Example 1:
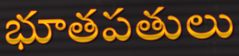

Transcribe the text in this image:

భూతపతులు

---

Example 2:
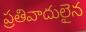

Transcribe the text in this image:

ప్రతివాదులైన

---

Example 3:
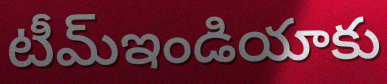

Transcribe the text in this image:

టీమ్ఇండియాకు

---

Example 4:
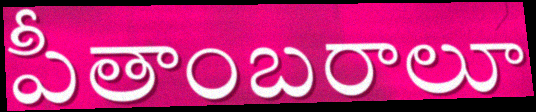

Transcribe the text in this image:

పీతాంబరాలూ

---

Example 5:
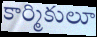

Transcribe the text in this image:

కార్మికులూ